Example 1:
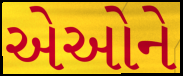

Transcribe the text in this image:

એઓને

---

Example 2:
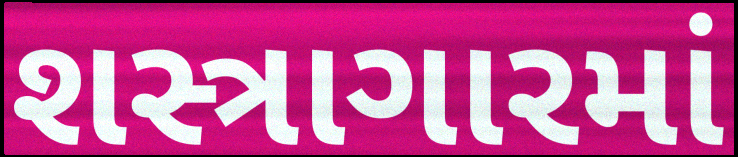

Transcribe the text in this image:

શસ્ત્રાગારમાં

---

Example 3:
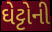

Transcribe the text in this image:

ઘેટ્ટોની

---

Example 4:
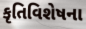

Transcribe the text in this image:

કૃતિવિશેષના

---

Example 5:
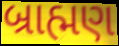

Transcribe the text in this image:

બ્રાહ્મણ